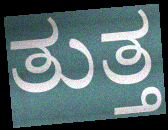
ತುತ್ತ